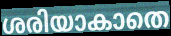
ശരിയാകാതെ